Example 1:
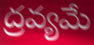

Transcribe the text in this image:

ద్రవ్యమే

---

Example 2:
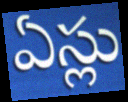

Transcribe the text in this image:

ఏస్లు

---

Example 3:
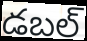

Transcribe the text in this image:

డబల్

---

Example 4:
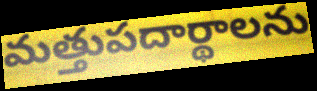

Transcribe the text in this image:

మత్తుపదార్థాలను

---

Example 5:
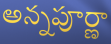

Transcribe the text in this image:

అన్నపూర్ణా